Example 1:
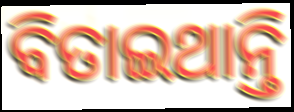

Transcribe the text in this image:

ବିତାଇଥାନ୍ତି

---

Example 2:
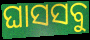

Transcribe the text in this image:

ଘାସସବୁ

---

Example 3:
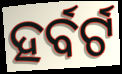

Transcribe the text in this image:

ହର୍ବର୍ଟ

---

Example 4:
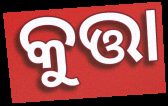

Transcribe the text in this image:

କୁତ୍ତା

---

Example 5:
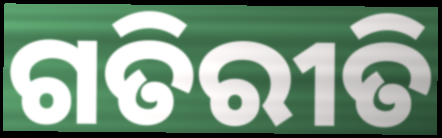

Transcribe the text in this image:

ଗତିରୀତି